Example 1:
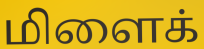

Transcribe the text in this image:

மிளைக்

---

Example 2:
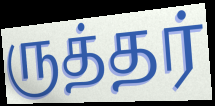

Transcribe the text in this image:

ருத்தர்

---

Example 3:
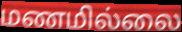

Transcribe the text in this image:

மணமில்லை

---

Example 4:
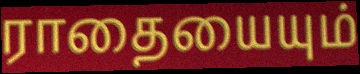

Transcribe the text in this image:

ராதையையும்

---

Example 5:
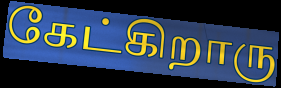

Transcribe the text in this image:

கேட்கிறாரு